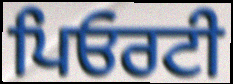
ਪਿਓਰਟੀ